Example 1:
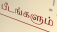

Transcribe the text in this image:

பீடங்களும்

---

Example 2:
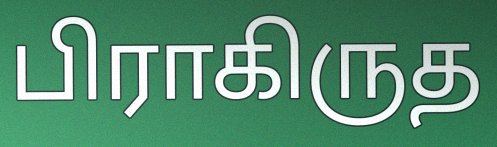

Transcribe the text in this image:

பிராகிருத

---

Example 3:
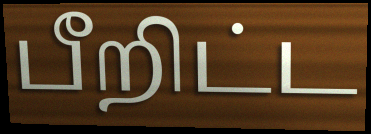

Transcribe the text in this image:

பீறிட்ட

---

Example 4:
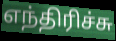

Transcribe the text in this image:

எந்திரிச்சு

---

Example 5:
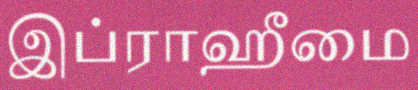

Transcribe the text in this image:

இப்ராஹீமை